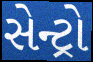
સેન્ટ્રો